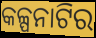
କଳ୍ପନାଟିର